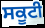
ਸਕੂਟੀ